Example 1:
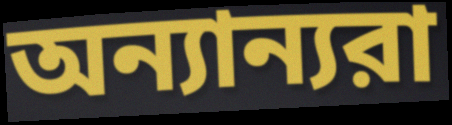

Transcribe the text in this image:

অন্যান্যরা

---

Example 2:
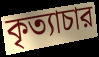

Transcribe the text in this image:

কৃত্যাচার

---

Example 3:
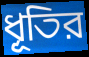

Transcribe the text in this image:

ধূতির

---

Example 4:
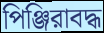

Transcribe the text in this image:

পিঞ্জিরাবদ্ধ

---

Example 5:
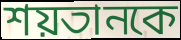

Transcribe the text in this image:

শয়তানকে